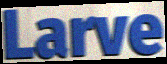
Larve